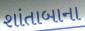
શાંતાબાના